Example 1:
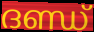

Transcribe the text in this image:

ദണ്ഡ്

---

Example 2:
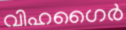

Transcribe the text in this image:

വിഹഗൈർ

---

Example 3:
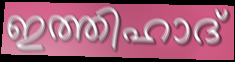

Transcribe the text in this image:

ഇത്തിഹാദ്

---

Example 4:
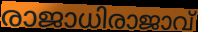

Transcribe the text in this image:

രാജാധിരാജാവ്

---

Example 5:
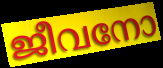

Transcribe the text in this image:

ജീവനോ